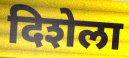
दिशेला